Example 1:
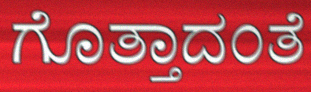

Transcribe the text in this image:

ಗೊತ್ತಾದಂತೆ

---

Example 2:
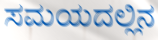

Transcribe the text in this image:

ಸಮಯದಲ್ಲಿನ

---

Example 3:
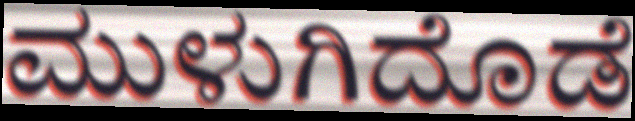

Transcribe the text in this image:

ಮುಳುಗಿದೊಡೆ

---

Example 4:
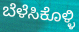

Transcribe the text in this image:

ಬೆಳೆಸಿಕೊಳ್ಳಿ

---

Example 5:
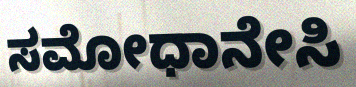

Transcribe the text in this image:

ಸಮೋಧಾನೇಸಿ